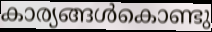
കാര്യങ്ങൾകൊണ്ടു